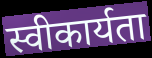
स्वीकार्यता